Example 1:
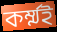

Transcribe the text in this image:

কর্ম্মই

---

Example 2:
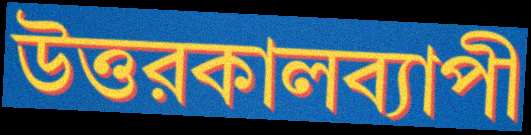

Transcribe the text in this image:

উত্তরকালব্যাপী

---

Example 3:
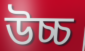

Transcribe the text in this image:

উচ্চ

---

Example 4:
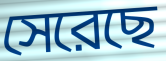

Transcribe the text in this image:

সেরেছে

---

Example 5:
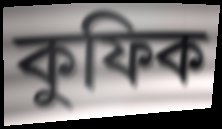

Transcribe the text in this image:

কুফিক